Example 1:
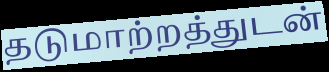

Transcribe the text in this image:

தடுமாற்றத்துடன்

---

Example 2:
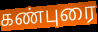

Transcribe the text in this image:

கண்புரை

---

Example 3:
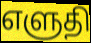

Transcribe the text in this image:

எளுதி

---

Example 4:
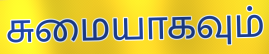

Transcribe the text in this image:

சுமையாகவும்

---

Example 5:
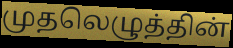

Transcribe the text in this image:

முதலெழுத்தின்